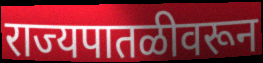
राज्यपातळीवरून